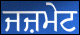
ਜਜ਼ਮੇਟ